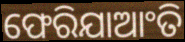
ଫେରିଯାଆଂତି